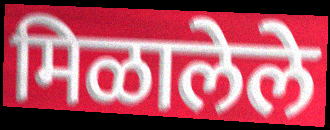
मिळालेले